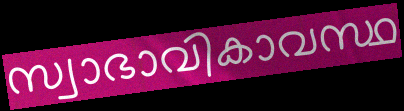
സ്വാഭാവികാവസ്ഥ